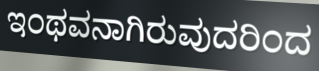
ಇಂಥವನಾಗಿರುವುದರಿಂದ